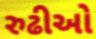
રુઢીઓ